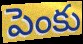
పెంకు